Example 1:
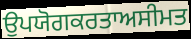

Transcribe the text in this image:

ਉਪਯੋਗਕਰਤਾਅਸੀਮਤ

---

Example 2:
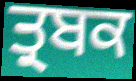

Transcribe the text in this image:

ਤ੍ਰਬਕ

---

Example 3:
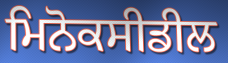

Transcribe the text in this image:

ਮਿਨੋਕਸੀਡੀਲ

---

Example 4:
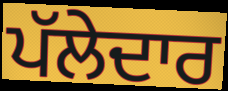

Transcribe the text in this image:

ਪੱਲੇਦਾਰ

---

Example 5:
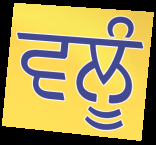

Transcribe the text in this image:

ਵਲੂੰ